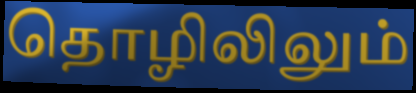
தொழிலிலும்